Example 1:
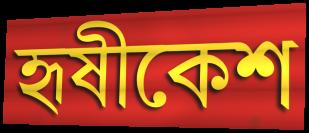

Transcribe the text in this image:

হৃষীকেশ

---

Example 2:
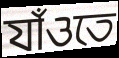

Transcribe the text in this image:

যাঁওতে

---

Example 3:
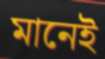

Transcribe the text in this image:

মানেই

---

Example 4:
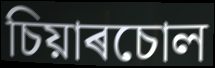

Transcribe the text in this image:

চিয়াৰচোল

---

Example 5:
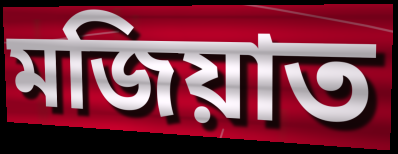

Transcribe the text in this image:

মজিয়াত